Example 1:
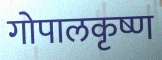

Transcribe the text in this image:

गोपालकृष्ण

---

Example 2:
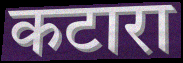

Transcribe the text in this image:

कटारा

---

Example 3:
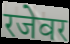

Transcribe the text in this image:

रजेवर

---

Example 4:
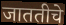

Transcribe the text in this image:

जाततीचे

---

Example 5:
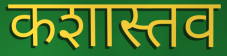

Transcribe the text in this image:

कशास्तव